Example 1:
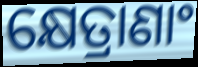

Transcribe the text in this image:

କ୍ଷେତ୍ରାଣାଂ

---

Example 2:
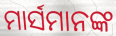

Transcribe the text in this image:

ମାର୍ସମାନଙ୍କ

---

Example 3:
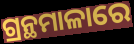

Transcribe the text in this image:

ଗ୍ରନ୍ଥମାଳାରେ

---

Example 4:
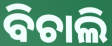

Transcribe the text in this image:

ବିଚାଲି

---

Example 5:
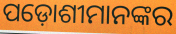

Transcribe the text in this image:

ପଡ଼ୋଶୀମାନଙ୍କର